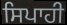
ਸਿਪਾਹੀ